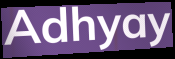
Adhyay